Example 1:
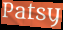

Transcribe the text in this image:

Patsy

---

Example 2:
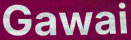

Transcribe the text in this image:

Gawai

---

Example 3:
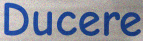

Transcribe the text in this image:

Ducere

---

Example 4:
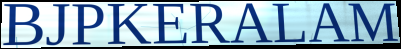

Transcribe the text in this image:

BJPKERALAM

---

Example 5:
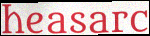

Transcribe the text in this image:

heasarc